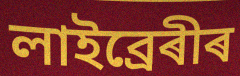
লাইব্ৰেৰীৰ